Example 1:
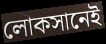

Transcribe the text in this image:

লোকসানেই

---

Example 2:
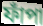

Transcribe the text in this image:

ফাঁপা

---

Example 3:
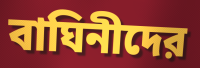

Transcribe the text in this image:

বাঘিনীদের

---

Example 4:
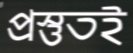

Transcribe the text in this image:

প্রস্তুতই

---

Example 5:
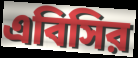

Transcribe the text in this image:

এবিসির